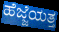
ಹೆಜ್ಜೆಯತ್ತ